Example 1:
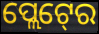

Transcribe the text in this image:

ପ୍ଲେଟ୍‍ରେ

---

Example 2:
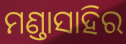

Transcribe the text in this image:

ମଣ୍ଡାସାହିର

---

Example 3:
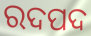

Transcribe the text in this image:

ରଦପଦ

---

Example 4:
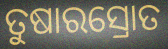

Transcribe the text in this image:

ତୁଷାରସ୍ରୋତ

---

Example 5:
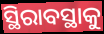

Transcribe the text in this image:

ସ୍ଥିରାବସ୍ଥାକୁ